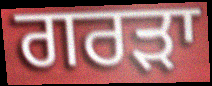
ਗਰੜਾ